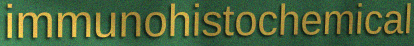
immunohistochemical